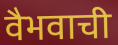
वैभवाची